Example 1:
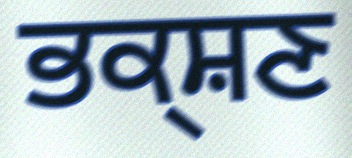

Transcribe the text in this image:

ਭਕ੍ਸ਼ਣ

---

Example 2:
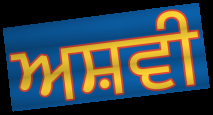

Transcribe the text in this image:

ਅਸ਼ਵੀ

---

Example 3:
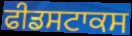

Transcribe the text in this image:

ਫੀਡਸਟਾਕਸ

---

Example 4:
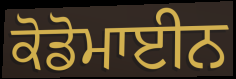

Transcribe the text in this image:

ਕੋਡੋਮਾਈਨ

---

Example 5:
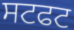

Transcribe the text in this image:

ਸਟਫਟ